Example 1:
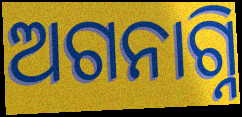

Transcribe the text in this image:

ଅଗନାଗ୍ନି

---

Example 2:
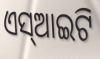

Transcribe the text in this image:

ଏସ୍ଆଇଟି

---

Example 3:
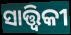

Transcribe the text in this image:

ସାତ୍ତ୍ୱିକୀ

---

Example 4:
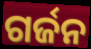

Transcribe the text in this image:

ଗର୍ଜନ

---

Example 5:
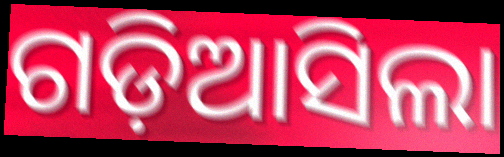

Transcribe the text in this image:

ଗଡ଼ିଆସିଲା